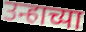
उन्हाच्या